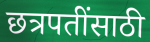
छत्रपतींसाठी